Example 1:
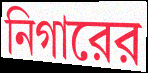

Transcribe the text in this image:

নিগারের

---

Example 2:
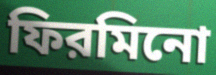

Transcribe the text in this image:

ফিরমিনো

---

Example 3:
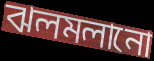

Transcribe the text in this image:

ঝলমলানো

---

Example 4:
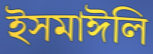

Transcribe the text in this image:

ইসমাঈলি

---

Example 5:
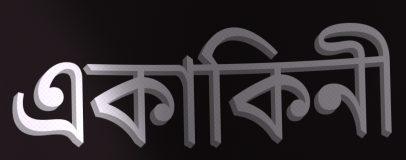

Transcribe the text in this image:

একাকিনী